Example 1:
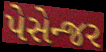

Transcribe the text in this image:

પેસેન્જર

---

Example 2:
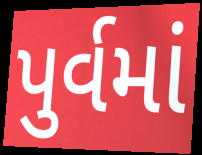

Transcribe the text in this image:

પુર્વમાં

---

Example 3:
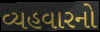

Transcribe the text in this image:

વ્યહવારનો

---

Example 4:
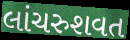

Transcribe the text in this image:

લાંચરુશવત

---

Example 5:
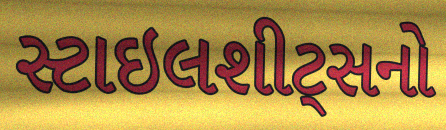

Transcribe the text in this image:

સ્ટાઇલશીટ્સનો